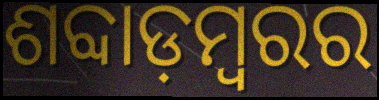
ଶବ୍ଦାଡ଼ମ୍ବରର